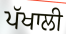
ਪੱਖਾਲੀ